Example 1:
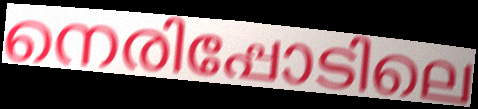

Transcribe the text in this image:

നെരിപ്പോടിലെ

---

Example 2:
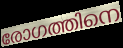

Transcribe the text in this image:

രോഗത്തിനെ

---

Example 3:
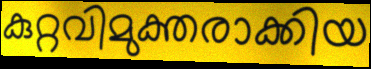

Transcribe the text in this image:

കുറ്റവിമുക്തരാക്കിയ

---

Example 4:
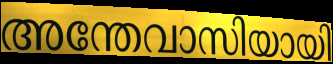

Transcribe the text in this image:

അന്തേവാസിയായി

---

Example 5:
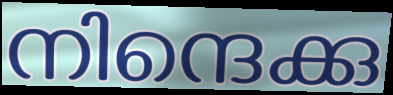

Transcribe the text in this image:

നിന്ദെക്കു